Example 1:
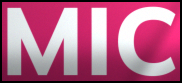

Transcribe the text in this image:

MIC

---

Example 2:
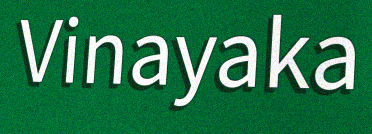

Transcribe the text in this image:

Vinayaka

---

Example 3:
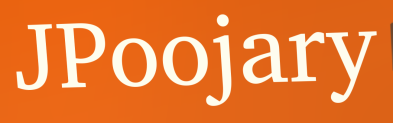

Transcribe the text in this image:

JPoojary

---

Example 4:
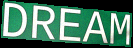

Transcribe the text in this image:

DREAM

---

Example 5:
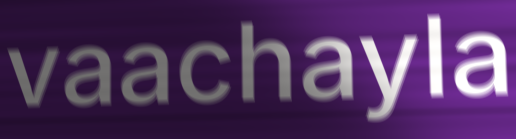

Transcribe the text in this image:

vaachayla